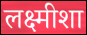
लक्ष्मीशा